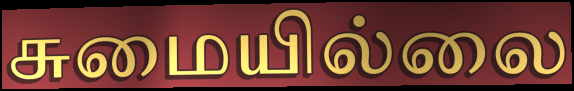
சுமையில்லை